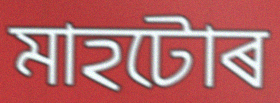
মাহটোৰ